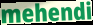
mehendi